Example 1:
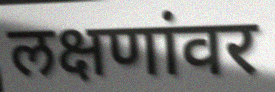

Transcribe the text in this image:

लक्षणांवर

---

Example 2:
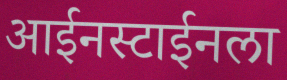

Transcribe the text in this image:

आईनस्टाईनला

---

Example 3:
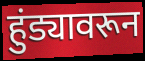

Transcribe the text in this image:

हुंड्यावरून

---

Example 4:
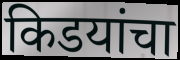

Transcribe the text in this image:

किडयांचा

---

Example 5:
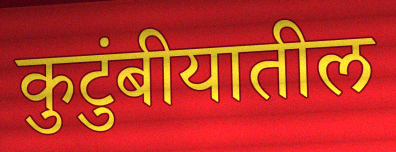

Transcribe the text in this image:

कुटुंबीयातील